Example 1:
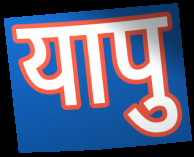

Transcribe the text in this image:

यापु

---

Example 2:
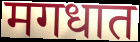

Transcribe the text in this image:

मगधात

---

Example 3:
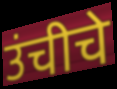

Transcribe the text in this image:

उंचीचे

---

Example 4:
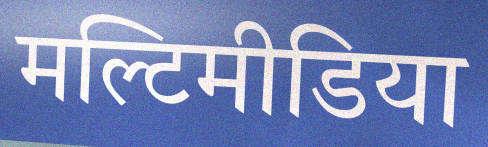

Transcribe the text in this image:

मल्टिमीडिया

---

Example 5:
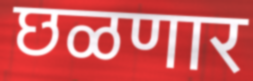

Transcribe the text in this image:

छळणार